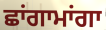
ਛਾਂਗਾਮਾਂਗਾ